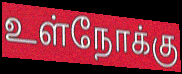
உள்நோக்கு